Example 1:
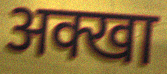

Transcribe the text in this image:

अक्खा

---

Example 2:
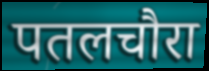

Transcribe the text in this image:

पतलचौरा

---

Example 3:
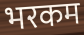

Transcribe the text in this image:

भरकम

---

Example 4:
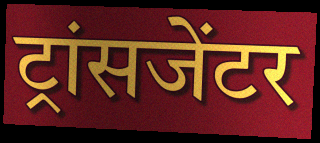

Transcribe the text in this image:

ट्रांसजेंटर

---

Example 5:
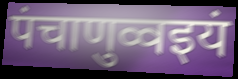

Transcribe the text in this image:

पंचाणुव्वइयं